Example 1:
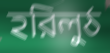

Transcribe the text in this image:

হরিলুঠ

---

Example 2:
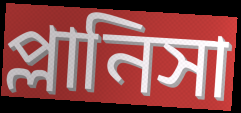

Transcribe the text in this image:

প্লানিসা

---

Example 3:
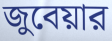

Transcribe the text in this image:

জুবেয়ার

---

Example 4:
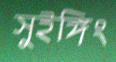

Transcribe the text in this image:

সুইঙ্গিং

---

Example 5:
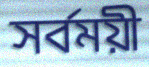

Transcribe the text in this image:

সর্বময়ী